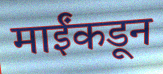
माईंकडून